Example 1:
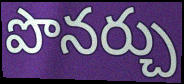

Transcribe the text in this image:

పొనర్చు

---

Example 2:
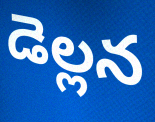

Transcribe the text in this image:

డెల్లన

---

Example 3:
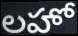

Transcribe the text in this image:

లహో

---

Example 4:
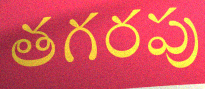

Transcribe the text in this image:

తగరపు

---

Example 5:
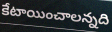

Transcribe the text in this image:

కేటాయించాలన్నది